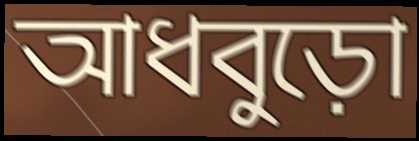
আধবুড়ো